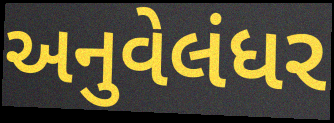
અનુવેલંધર